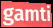
gamti